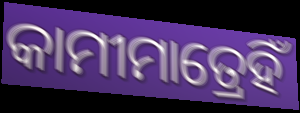
କାମୀମାତ୍ରେହିଁ